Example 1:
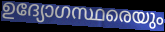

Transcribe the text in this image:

ഉദ്യോഗസ്ഥരെയും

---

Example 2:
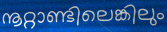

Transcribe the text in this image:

നൂറ്റാണ്ടിലെങ്കിലും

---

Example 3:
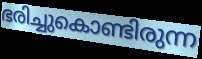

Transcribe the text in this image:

ഭരിച്ചുകൊണ്ടിരുന്ന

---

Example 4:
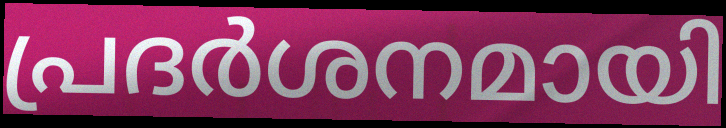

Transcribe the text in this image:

പ്രദർശനമായി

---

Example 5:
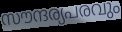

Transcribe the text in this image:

സൗന്ദര്യപരവും